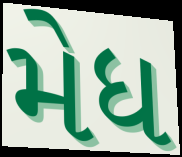
મેધ